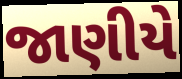
જાણીયે